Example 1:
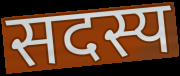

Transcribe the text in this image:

सदस्‍य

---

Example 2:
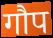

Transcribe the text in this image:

गौप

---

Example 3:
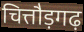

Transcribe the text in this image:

चित्तौड़गढ़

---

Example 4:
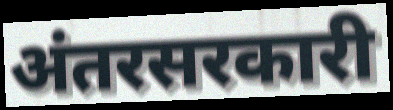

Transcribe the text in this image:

अंतरसरकारी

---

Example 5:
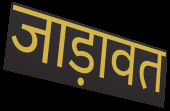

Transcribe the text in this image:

जाड़ावत